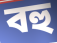
বহু